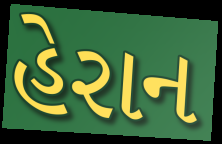
હેરાન